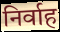
निर्वाह